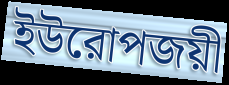
ইউরোপজয়ী